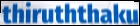
thiruththaku